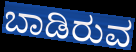
ಬಾಡಿರುವ